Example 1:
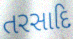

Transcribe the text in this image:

તરસાદિ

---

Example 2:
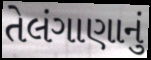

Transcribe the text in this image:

તેલંગાણાનું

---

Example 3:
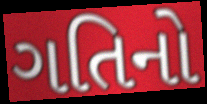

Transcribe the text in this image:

ગતિનો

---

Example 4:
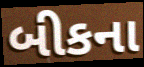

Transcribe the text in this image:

બીકના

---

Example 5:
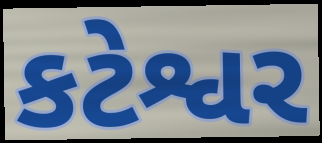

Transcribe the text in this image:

કટેશ્વર